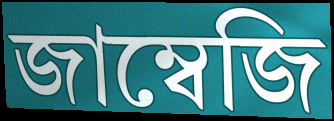
জাম্বেজি